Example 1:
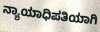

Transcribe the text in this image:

ನ್ಯಾಯಾಧಿಪತಿಯಾಗಿ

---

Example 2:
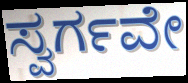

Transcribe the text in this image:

ಸ್ವರ್ಗವೇ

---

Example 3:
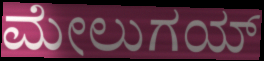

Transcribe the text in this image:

ಮೇಲುಗಯ್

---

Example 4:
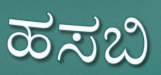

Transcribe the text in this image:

ಹಸಬಿ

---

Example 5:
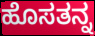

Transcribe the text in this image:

ಹೊಸತನ್ನ